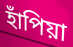
হাঁপিয়া